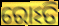
ରୋଽତି